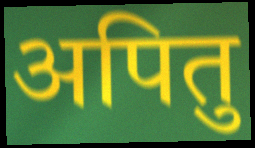
अपितु